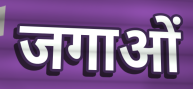
जगाओं